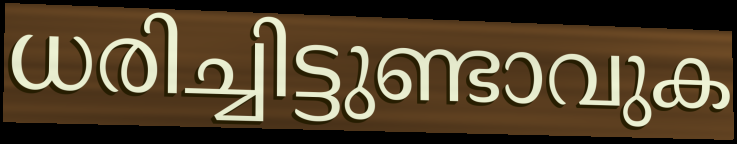
ധരിച്ചിട്ടുണ്ടാവുക